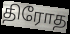
திரோத